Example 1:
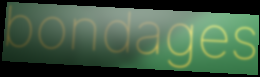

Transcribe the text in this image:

bondages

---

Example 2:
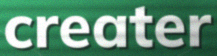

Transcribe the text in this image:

creater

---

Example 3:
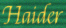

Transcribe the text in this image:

Haider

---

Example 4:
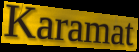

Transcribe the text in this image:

Karamat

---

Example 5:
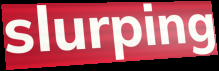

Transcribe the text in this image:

slurping